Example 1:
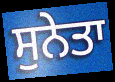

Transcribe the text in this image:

ਸੁਨੇਤਾ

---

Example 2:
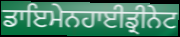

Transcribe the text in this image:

ਡਾਇਮੇਨਹਾਈਡ੍ਰੀਨੇਟ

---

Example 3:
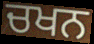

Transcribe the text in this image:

ਚਖਨ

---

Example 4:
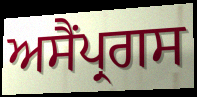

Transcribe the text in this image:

ਅਸੈਂਪ੍ਰਗਸ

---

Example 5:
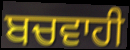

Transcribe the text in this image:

ਬਚਵਾਹੀ